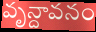
వృన్దావనం